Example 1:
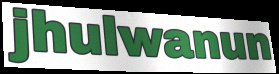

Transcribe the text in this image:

jhulwanun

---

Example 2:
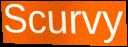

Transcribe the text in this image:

Scurvy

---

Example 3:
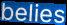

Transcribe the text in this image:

belies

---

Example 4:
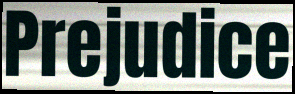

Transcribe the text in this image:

Prejudice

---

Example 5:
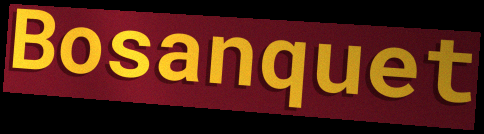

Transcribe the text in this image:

Bosanquet